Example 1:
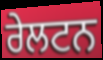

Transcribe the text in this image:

ਰੇਲਟਨ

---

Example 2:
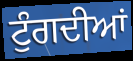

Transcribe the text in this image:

ਟੁੰਗਦੀਆਂ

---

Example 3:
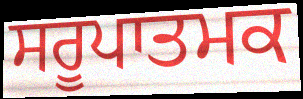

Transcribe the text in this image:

ਸਰੂਪਾਤਮਕ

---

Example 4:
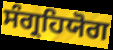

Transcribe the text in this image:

ਸੰਗ੍ਰਹਿਯੋਗ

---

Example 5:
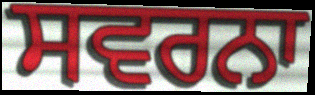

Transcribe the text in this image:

ਸਵਰਨਾ